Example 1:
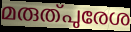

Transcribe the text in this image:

മരുത്പുരേശ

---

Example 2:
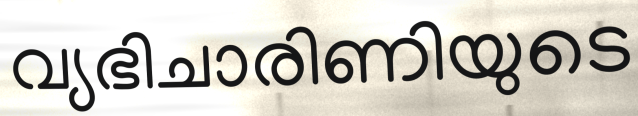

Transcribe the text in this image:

വ്യഭിചാരിണിയുടെ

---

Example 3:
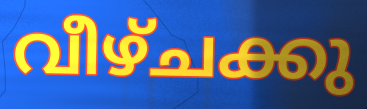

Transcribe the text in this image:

വീഴ്ചക്കു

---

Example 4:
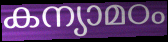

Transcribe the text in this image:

കന്യാമഠം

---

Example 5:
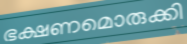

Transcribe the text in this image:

ഭക്ഷണമൊരുക്കി